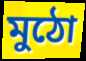
মুঠো